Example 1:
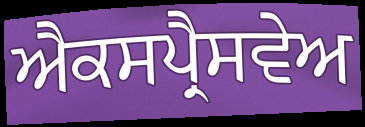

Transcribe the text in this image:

ਐਕਸਪ੍ਰੈਸਵੇਅ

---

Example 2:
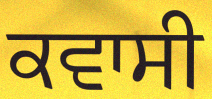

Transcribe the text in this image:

ਕਵਾਸੀ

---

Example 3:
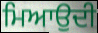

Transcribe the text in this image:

ਮਿਆਉਦੀ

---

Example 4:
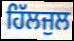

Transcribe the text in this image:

ਹਿੱਲਜੁਲ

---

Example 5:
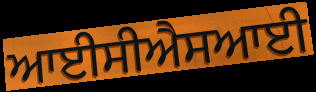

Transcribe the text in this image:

ਆਈਸੀਐਸਆਈ